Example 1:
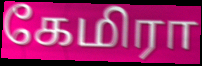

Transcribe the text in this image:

கேமிரா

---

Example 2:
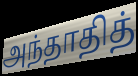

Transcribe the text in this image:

அந்தாதித்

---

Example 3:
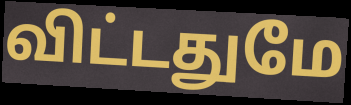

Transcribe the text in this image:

விட்டதுமே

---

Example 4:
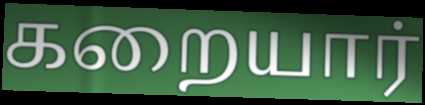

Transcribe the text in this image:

கறையார்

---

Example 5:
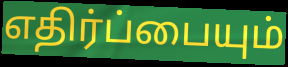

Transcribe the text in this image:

எதிர்ப்பையும்